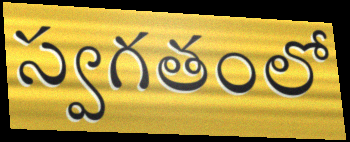
స్వగతంలో